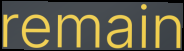
remain